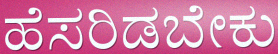
ಹೆಸರಿಡಬೇಕು